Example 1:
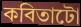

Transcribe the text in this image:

কবিতাটো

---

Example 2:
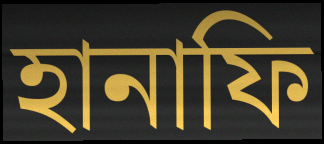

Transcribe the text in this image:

হানাফি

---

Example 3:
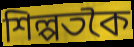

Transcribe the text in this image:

শিল্পতকৈ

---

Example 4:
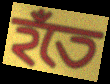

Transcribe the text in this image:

হঁতে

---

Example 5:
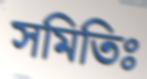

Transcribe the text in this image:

সমিতিঃ